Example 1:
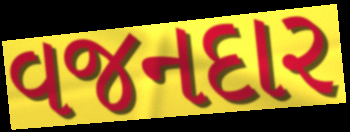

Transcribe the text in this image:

વજનદાર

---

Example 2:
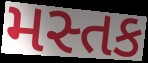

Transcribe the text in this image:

મસ્તક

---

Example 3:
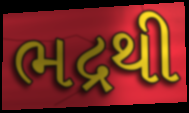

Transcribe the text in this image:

ભદ્રથી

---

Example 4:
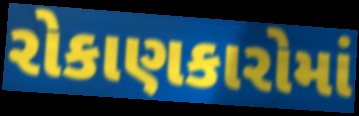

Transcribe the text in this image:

રોકાણકારોમાં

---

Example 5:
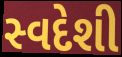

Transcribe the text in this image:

સ્વદેશી